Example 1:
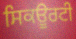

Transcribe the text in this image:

ਸਿਕਊਰਟੀ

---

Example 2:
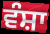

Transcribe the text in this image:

ਵੰਸ਼ਾ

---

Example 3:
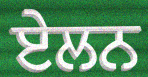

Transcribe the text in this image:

ਏਲਨ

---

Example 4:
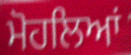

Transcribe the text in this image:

ਮੋਹਲਿਆਂ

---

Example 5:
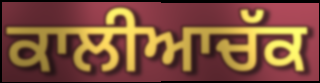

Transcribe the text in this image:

ਕਾਲੀਆਚੱਕ